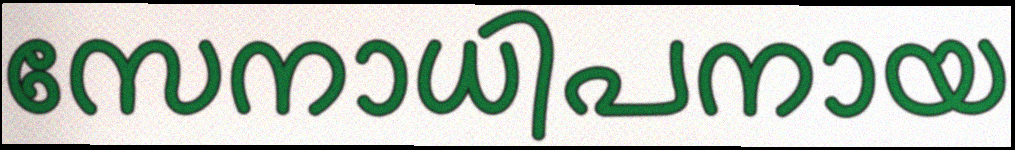
സേനാധിപനായ